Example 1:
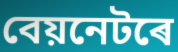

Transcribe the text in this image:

বেয়নেটৰে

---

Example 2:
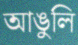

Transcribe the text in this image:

আঙুলি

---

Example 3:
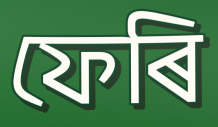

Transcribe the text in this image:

ফেৰি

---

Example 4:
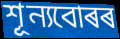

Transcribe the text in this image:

শূন্যবোৰৰ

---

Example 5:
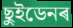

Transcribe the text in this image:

ছুইডেনৰ